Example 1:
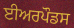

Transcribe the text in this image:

ਈਅਰਪੌਡਸ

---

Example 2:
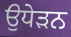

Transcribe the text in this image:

ਉਧੇੜਨ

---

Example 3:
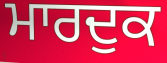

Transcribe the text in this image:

ਮਾਰਦੁਕ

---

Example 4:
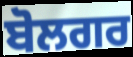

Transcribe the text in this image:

ਬੋਲਗਰ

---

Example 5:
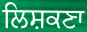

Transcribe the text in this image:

ਲਿਸ਼ਕਣਾ